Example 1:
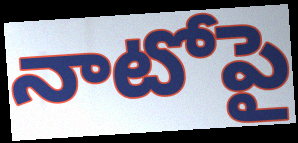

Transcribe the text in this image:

నాటోపై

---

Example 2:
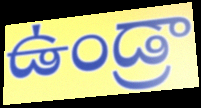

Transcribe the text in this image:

ఉండ్రా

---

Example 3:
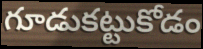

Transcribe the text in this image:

గూడుకట్టుకోడం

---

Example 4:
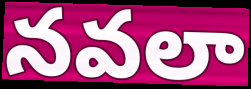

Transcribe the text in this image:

నవలా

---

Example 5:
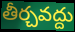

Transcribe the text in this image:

తీర్చవద్దు